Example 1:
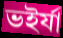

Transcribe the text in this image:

ভইর্যা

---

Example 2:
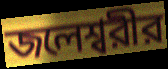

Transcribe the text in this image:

জলেশ্বরীর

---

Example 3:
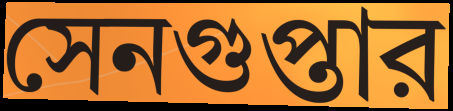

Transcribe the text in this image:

সেনগুপ্তার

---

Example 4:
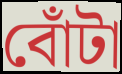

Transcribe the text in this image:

বোঁটা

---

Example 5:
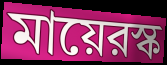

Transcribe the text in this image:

মায়েরস্ক